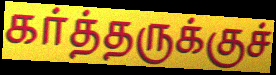
கர்த்தருக்குச்